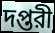
দপ্তরী